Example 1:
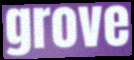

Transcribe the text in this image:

grove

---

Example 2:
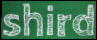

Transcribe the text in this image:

shird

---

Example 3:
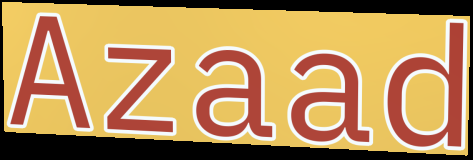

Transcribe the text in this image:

Azaad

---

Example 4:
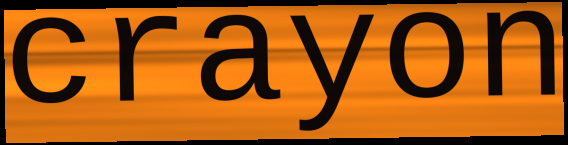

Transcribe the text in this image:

crayon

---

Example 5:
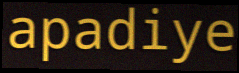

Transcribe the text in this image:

apadiye